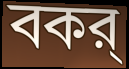
বকর্